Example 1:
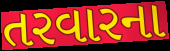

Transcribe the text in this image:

તરવારના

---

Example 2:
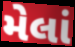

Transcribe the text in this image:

મેલાં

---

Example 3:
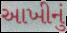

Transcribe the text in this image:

આખીનું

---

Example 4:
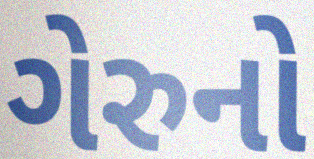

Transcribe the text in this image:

ગેરુનો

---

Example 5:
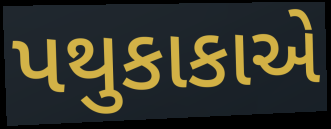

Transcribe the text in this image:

પથુકાકાએ